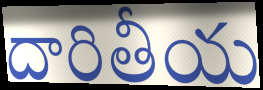
దారితీయ